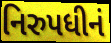
નિરુપધીનં